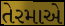
તેરમાએ